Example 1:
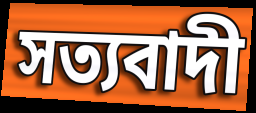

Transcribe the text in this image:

সত্যবাদী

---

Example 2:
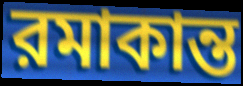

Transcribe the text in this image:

রমাকান্ত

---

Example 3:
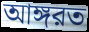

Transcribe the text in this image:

আঙ্গরত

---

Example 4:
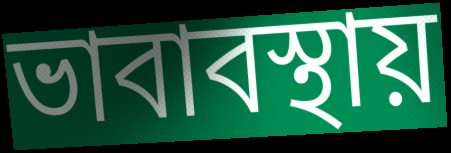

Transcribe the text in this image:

ভাবাবস্থায়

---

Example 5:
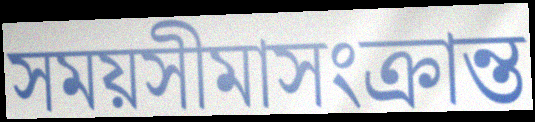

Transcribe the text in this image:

সময়সীমাসংক্রান্ত